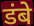
डंबे